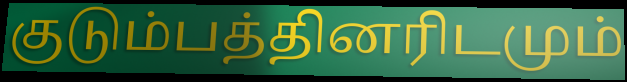
குடும்பத்தினரிடமும்